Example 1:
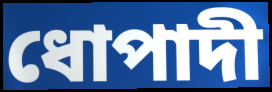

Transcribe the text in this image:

ধোপাদী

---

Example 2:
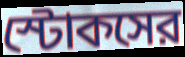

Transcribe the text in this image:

স্টোকসের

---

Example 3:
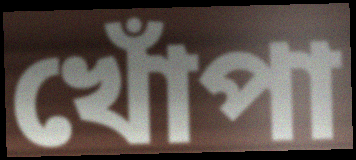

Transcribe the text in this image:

খোঁপা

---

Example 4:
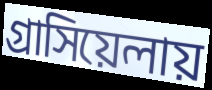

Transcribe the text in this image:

গ্রাসিয়েলায়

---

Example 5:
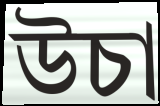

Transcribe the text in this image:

উচা